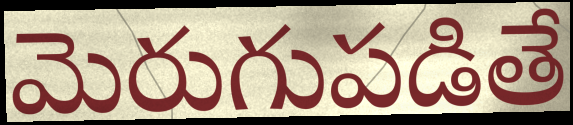
మెరుగుపడితే